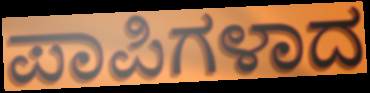
ಪಾಪಿಗಳಾದ